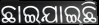
ଛାଇଯାଇଛି